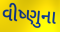
વીષ્ણુના